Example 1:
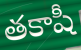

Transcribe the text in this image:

తకాషీ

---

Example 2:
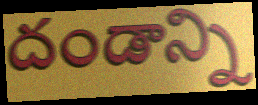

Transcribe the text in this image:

దండాన్ని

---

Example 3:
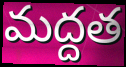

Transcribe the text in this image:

మద్దత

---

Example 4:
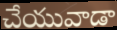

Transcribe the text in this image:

చేయువాడా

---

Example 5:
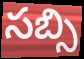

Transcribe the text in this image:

సబ్సి